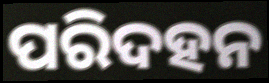
ପରିଦହନ